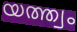
യത്ത്വം